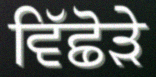
ਵਿੱਛੋੜੇ